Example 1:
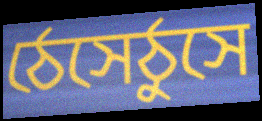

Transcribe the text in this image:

ঠেসেঠুসে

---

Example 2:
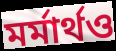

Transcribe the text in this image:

মর্মার্থও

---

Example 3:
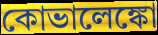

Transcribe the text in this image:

কোভালেঙ্কো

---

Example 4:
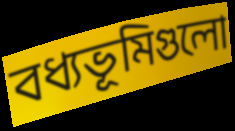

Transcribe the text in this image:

বধ্যভূমিগুলো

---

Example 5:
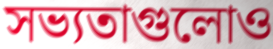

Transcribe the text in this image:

সভ্যতাগুলোও